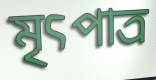
মৃৎপাত্র